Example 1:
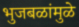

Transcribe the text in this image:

भुजबळांमुळे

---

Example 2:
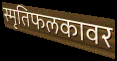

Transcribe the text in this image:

स्मृतिफलकावर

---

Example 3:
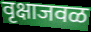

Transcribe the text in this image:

वृक्षाजवळ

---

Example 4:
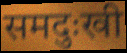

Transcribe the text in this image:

समदुःखी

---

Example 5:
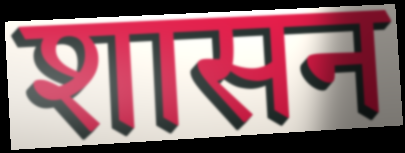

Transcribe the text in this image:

शासन